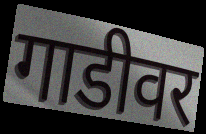
गाडीवर